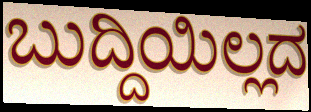
ಬುದ್ದಿಯಿಲ್ಲದ